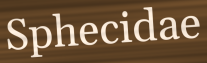
Sphecidae